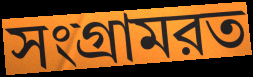
সংগ্রামরত